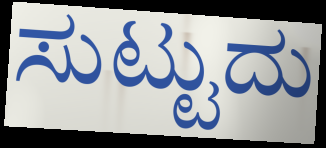
ಸುಟ್ಟುದು